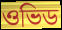
ওভিড